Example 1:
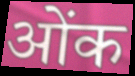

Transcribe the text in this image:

ओंक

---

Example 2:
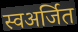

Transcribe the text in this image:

स्वअर्जित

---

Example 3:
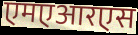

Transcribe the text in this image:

एमएआरएस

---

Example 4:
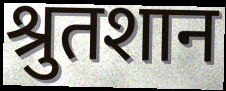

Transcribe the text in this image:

श्रुतशान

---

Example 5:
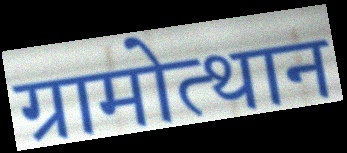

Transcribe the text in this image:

ग्रामोत्थान